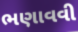
ભણાવવી